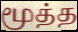
மூத்த